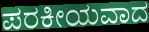
ಪರಕೀಯವಾದ